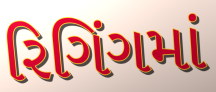
રિગિંગમાં